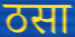
ठसा